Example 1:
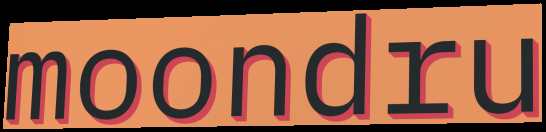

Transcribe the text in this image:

moondru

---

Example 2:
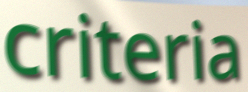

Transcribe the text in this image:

criteria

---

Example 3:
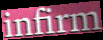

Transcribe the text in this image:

infirm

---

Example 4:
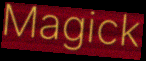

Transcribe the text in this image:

Magick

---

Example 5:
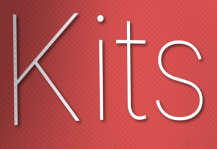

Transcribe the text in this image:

Kits